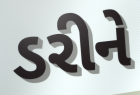
ડરીને